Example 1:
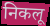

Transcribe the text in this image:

निकलू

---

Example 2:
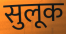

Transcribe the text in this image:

सुलूक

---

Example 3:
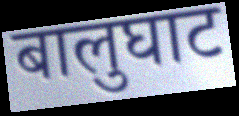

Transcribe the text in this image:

बालुघाट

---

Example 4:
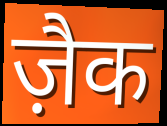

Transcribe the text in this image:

ज़ैक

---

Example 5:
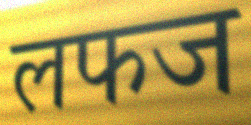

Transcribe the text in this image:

लफज